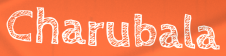
Charubala